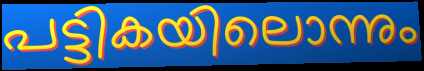
പട്ടികയിലൊന്നും